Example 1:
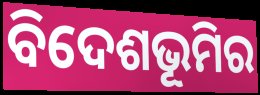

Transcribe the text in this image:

ବିଦେଶଭୂମିର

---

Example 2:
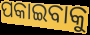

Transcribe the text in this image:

ପକାଇବାକୁ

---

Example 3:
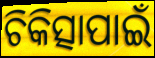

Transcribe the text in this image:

ଚିକିତ୍ସାପାଇଁ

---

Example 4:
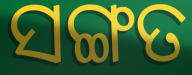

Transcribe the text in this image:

ସଙ୍ଗତ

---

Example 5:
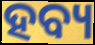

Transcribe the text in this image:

ହବ୍ୟ